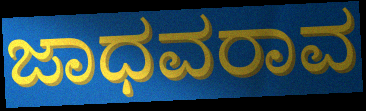
ಜಾಧವರಾವ